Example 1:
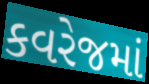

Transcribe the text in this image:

કવરેજમાં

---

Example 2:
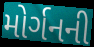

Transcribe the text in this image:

મોર્ગનની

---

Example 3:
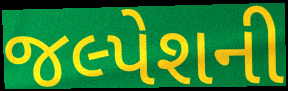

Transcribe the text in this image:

જલ્પેશની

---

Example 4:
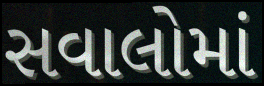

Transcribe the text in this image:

સવાલોમાં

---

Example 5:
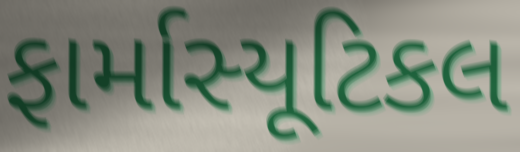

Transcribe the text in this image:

ફાર્માસ્યૂટિકલ